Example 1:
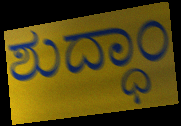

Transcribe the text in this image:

ಶುದ್ಧಾಂ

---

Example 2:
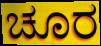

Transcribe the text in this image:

ಚೂರ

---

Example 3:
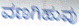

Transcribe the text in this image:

ವಣಗಿಹುವು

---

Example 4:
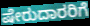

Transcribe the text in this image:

ಷೇರುದಾರರಿಗೆ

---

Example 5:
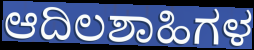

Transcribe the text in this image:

ಆದಿಲಶಾಹಿಗಳ